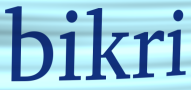
bikri